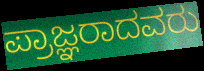
ಪ್ರಾಜ್ಞರಾದವರು